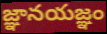
జ్ఞానయజ్ఞం